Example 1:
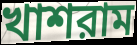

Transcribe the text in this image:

খাশরাম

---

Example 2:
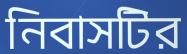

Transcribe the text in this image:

নিবাসটির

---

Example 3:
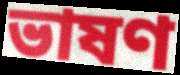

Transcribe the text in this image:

ভাষণ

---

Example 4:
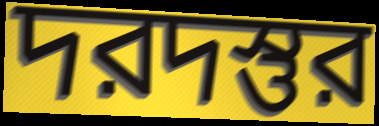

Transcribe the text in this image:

দরদস্তুর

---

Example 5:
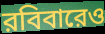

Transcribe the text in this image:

রবিবারেও